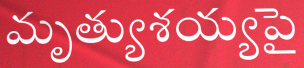
మృత్యుశయ్యపై